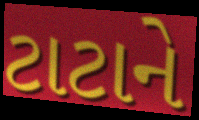
ટાટાને